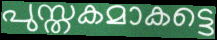
പുസ്തകമാകട്ടെ